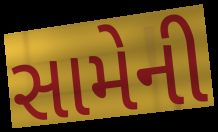
સામેની